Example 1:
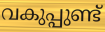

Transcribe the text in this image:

വകുപ്പുണ്ട്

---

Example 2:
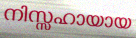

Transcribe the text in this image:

നിസ്സഹായായ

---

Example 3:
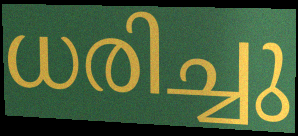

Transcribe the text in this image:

ധരിച്ചു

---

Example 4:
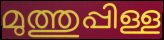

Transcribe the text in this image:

മുത്തുപ്പിള്ള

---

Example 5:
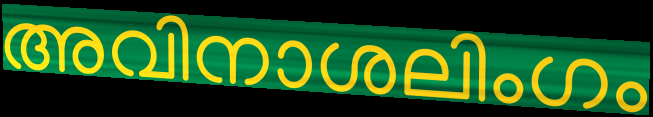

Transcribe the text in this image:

അവിനാശലിംഗം